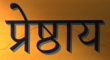
प्रेष्ठाय